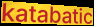
katabatic